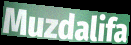
Muzdalifa